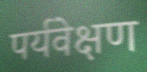
पर्यवेक्षण